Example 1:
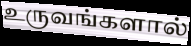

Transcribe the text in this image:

உருவங்களால்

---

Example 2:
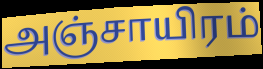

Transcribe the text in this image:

அஞ்சாயிரம்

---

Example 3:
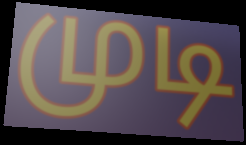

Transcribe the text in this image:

முடி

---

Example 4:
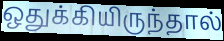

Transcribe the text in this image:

ஒதுக்கியிருந்தால்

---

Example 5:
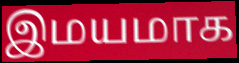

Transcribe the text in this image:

இமயமாக